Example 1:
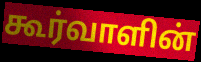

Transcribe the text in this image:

கூர்வாளின்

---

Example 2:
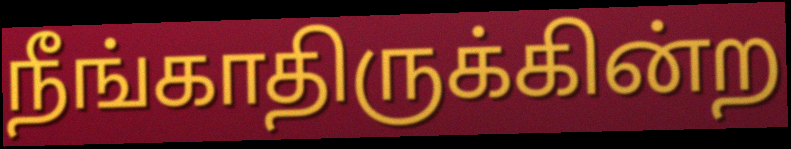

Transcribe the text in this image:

நீங்காதிருக்கின்ற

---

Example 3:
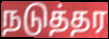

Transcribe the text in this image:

நடுத்தர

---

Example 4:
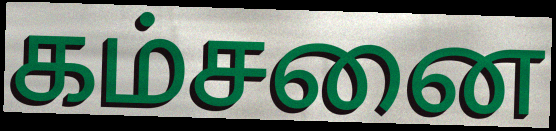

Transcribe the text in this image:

கம்சனை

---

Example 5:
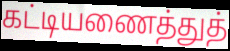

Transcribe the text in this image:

கட்டியணைத்துத்